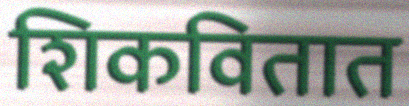
शिकवितात